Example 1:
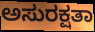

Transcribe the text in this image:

ಅಸುರಕ್ಷತಾ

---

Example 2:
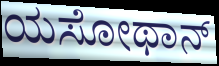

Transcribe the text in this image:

ಯಸೋಥಾನ್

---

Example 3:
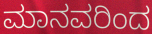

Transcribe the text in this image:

ಮಾನವರಿಂದ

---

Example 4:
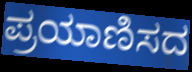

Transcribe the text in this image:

ಪ್ರಯಾಣಿಸದ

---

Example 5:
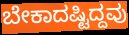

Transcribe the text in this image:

ಬೇಕಾದಷ್ಟಿದ್ದವು